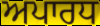
ਅਪਾਰਧ